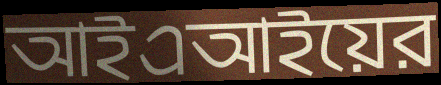
আইএআইয়ের